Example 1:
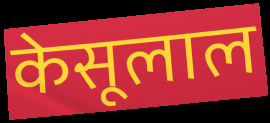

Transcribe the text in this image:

केसूलाल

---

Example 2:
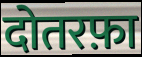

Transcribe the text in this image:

दोतरफ़ा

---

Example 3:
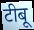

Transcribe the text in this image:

टीबू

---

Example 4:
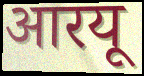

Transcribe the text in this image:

आरयू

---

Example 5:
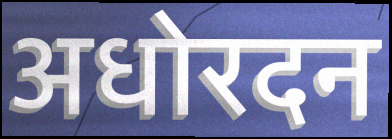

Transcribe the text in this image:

अधोरदन